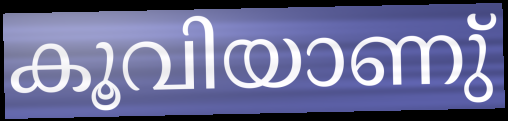
കൂവിയാണു്